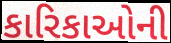
કારિકાઓની